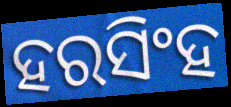
ହରସିଂହ